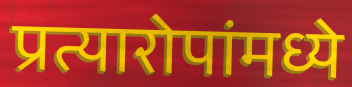
प्रत्यारोपांमध्ये